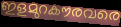
ഇളമുറകൗരവരെ